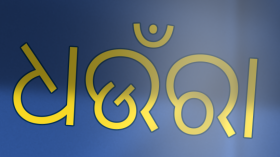
ଧଉଁରା